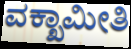
ವಕ್ಖಾಮೀತಿ